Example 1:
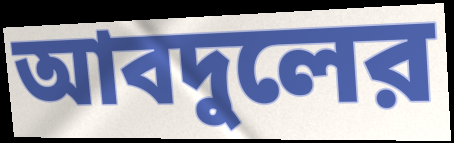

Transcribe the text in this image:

আবদুলের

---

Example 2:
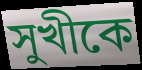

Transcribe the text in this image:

সুখীকে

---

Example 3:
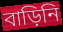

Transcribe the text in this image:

বাড়িনি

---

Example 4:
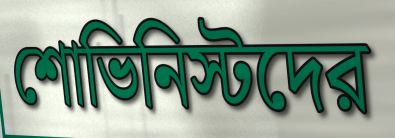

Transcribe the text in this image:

শোভিনিস্টদের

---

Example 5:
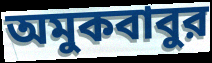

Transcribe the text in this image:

অমুকবাবুর